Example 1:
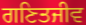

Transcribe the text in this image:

ਗਣਿਤਜੀਵ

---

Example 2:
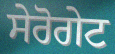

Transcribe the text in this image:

ਸੇਰੋਗੇਟ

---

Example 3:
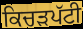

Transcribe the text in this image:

ਕਿਚੜਪੱਟੀ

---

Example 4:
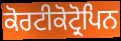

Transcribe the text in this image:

ਕੋਰਟੀਕੋਟ੍ਰੋਪਿਨ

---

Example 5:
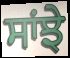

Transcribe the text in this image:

ਸਾਂਝੇ